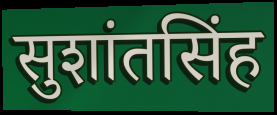
सुशांतसिंह